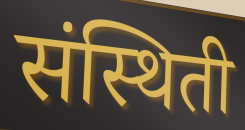
संस्थिती